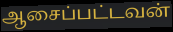
ஆசைப்பட்டவன்